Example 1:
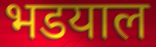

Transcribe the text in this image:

भडयाल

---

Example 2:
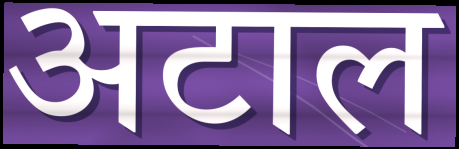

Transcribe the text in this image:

अटाल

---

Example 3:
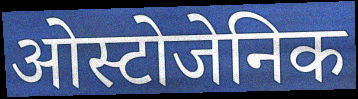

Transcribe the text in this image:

ओस्टोजेनिक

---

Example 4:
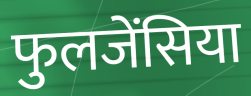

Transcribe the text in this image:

फुलजेंसिया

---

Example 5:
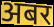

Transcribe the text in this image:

अबर